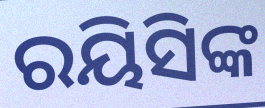
ରୟିସିଙ୍କ